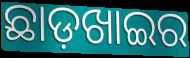
ଛାଡ଼ଖାଇର